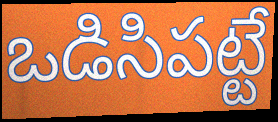
ఒడిసిపట్టే